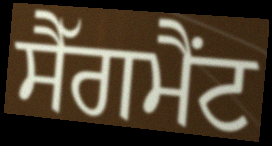
ਸੈੱਗਮੈਂਟ